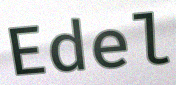
Edel